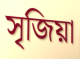
সৃজিয়া